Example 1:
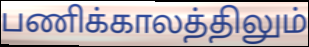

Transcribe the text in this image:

பணிக்காலத்திலும்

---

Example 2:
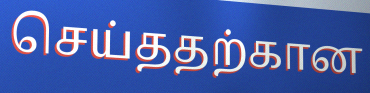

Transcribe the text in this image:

செய்ததற்கான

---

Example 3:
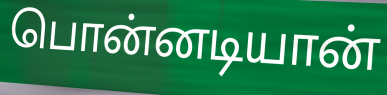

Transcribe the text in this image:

பொன்னடியான்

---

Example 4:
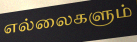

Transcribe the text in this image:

எல்லைகளும்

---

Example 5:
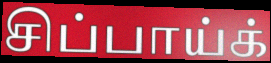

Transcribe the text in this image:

சிப்பாய்க்